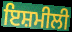
ਇਸ਼ਮੀਲੀ